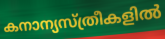
കനാന്യസ്ത്രീകളിൽ